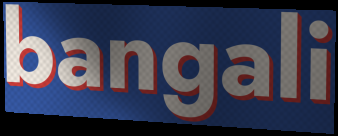
bangali